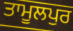
ਤਾਮੂਲਪੁਰ